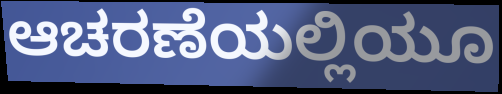
ಆಚರಣೆಯಲ್ಲಿಯೂ